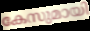
കേസുമായി